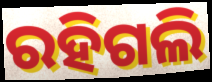
ରହିଗଲି